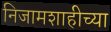
निजामशाहीच्या